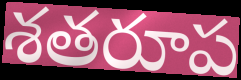
శతరూప